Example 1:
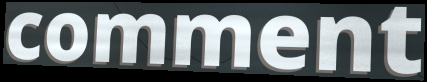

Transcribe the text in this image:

comment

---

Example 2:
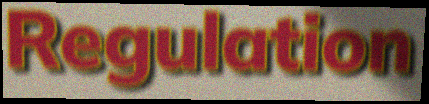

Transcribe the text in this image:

Regulation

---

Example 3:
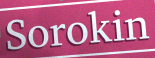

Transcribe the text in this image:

Sorokin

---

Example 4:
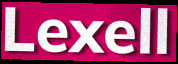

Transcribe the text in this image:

Lexell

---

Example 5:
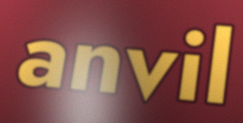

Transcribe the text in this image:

anvil